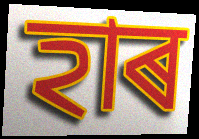
হাৰ